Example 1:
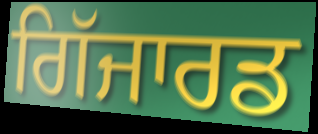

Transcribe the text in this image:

ਗਿੱਜਾਰਡ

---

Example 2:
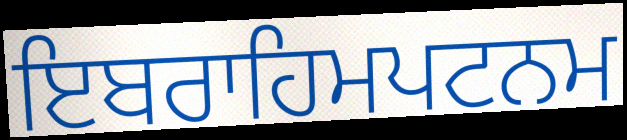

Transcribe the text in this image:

ਇਬਰਾਹਿਮਪਟਨਮ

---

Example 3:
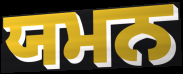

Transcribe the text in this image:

ਯਮਨ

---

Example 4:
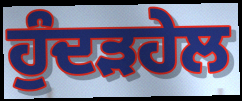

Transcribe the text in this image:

ਹੁੰਦੜਹੇਲ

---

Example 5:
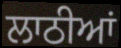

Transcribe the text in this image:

ਲਾਠੀਆਂ